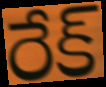
రేక్